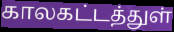
காலகட்டத்துள்